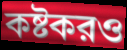
কষ্টকরও